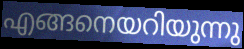
എങ്ങനെയറിയുന്നു